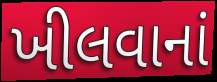
ખીલવાનાં